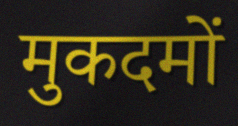
मुकदमों